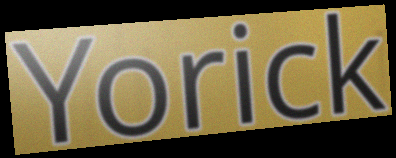
Yorick